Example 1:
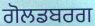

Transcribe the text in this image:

ਗੋਲਡਬਰਗ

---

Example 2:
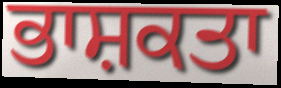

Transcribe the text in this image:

ਭਾਸ਼ਕਤਾ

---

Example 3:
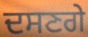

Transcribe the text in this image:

ਦਸਣਗੇ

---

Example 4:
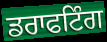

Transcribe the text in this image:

ਡਰਾਫਟਿੰਗ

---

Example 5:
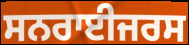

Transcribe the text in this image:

ਸਨਰਾਈਜਰਸ